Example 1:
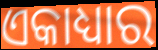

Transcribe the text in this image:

ଏକାଧ୍ୟାର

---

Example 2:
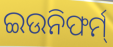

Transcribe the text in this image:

ଇଉନିଫର୍ମ୍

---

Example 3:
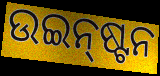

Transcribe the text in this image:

ଉଇନ୍‌ଷ୍ଟନ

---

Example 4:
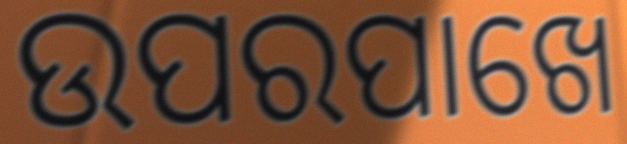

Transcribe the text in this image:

ଉପରପାଖେ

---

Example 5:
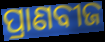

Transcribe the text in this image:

ପ୍ରାଣବୀଜ